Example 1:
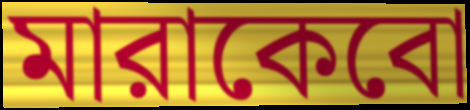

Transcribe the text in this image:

মারাকেবো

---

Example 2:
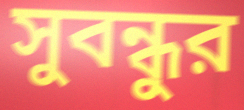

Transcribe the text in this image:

সুবন্ধুর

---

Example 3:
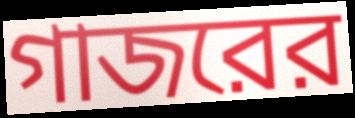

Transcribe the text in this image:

গাজরের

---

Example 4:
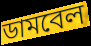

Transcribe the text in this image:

ডামবেল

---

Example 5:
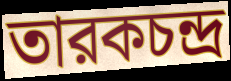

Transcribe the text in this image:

তারকচন্দ্র